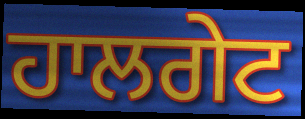
ਹਾਲਗੇਟ